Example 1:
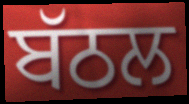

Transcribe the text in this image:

ਬੱਠਲ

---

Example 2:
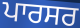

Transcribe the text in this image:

ਪਾਰਸਰ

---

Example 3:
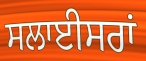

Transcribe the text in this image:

ਸਲਾਈਸਰਾਂ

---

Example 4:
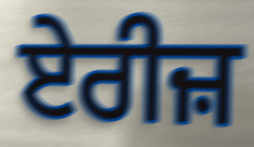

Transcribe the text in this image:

ਏਰੀਜ਼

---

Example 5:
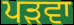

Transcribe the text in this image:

ਪੜਵਾ